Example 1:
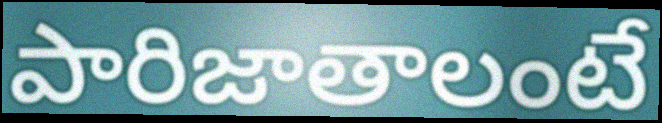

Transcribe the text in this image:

పారిజాతాలంటే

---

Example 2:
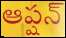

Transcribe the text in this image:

ఆప్షన్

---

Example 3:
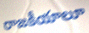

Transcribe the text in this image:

రాజకీయాలూ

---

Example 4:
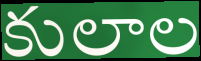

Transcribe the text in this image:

కులాల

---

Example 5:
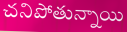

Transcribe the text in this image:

చనిపోతున్నాయి